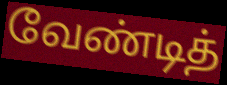
வேண்டித்